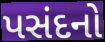
પસંદનો